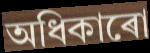
অধিকাৰো